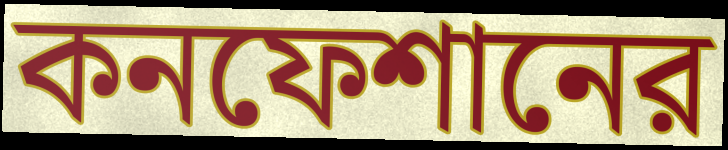
কনফেশানের